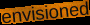
envisioned